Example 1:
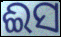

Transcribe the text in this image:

ଈସ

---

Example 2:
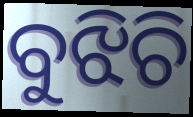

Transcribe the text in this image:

ବୁଝିଚି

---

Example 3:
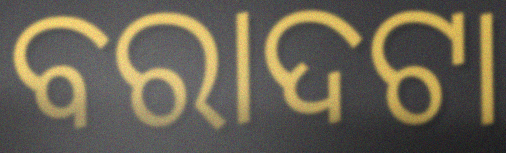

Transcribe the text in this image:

ବରାଦଟା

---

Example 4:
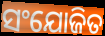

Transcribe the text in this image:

ସଂଯୋଜିତ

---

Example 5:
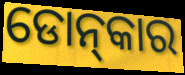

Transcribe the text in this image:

ଡୋନ୍‍କାର